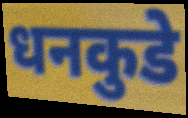
धनकुडे